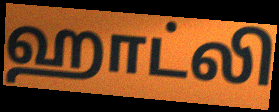
ஹாட்லி